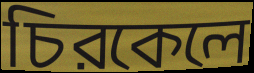
চিরকেলে